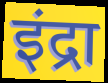
इंद्रा